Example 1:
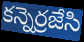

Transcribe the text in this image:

కన్నెర్రజేసి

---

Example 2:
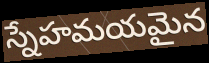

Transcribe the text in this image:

స్నేహమయమైన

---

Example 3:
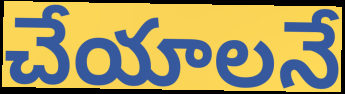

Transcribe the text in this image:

చేయాలనే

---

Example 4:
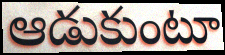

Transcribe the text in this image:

ఆడుకుంటూ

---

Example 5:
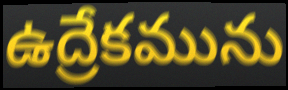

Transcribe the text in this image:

ఉద్రేకమును